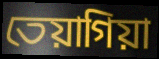
তেয়াগিয়া